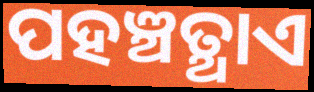
ପହଞ୍ଚତ୍ଥାଏ